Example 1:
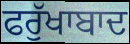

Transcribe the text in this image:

ਫਰੁੱਖਾਬਾਦ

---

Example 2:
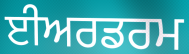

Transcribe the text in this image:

ਈਅਰਡਰਮ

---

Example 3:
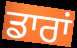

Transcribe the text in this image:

ਡਾਰਾਂ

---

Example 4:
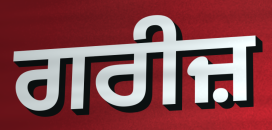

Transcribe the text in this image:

ਗਰੀਜ਼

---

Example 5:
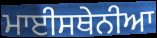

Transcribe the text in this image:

ਮਾਈਸਥੇਨੀਆ